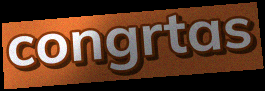
congrtas